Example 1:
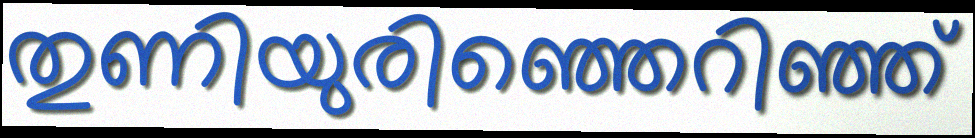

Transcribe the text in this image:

തുണിയുരിഞ്ഞെറിഞ്ഞ്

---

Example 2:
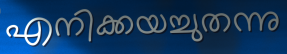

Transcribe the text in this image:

എനിക്കയച്ചുതന്നു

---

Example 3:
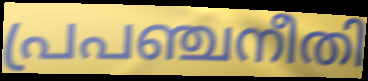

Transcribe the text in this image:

പ്രപഞ്ചനീതി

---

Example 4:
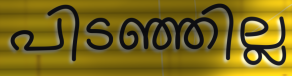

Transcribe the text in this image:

പിടഞ്ഞില്ല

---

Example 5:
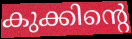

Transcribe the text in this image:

കുക്കിന്റെ